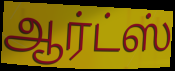
ஆர்ட்ஸ்